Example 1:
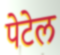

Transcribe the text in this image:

पेटेल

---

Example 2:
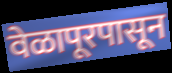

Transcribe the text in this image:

वेळापूरपासून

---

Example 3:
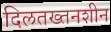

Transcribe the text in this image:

दिलतख्तनशीन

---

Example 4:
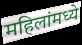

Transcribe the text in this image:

महिलांमध्ये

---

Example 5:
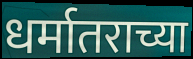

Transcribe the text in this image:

धर्मातराच्या